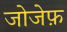
जोजेफ़